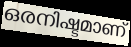
ഒരനിഷ്ടമാണ്